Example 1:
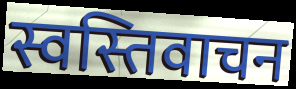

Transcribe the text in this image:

स्वस्तिवाचन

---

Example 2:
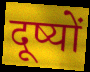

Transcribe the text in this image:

दूष्यों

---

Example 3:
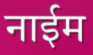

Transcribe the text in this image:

नाईम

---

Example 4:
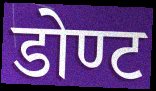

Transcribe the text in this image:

डोण्ट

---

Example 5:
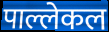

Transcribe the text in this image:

पाल्लेकल